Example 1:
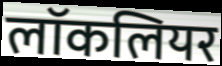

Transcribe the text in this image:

लॉकलियर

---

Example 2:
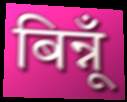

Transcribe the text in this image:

बिन्नूँ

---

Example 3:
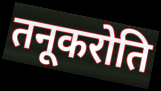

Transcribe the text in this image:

तनूकरोति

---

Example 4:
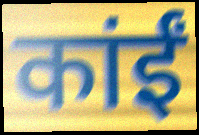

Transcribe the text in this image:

कांईं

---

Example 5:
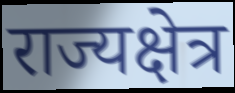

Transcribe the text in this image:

राज्यक्षेत्र